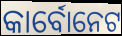
କାର୍ବୋନେଟ